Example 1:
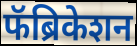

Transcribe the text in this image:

फॅब्रिकेशन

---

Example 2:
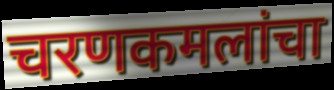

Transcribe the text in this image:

चरणकमलांचा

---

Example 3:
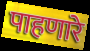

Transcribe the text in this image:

पाहणारे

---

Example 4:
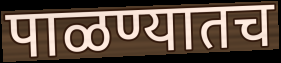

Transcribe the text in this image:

पाळण्यातच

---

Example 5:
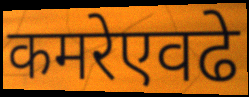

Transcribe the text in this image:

कमरेएवढे